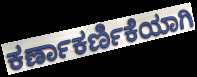
ಕರ್ಣಾಕರ್ಣಿಕೆಯಾಗಿ